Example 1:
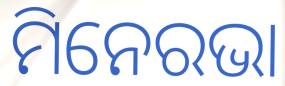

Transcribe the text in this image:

ମିନେରଭା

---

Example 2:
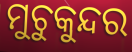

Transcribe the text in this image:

ମୁଚୁକୁନ୍ଦର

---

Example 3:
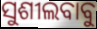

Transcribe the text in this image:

ସୁଶୀଲବାବୁ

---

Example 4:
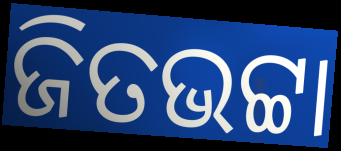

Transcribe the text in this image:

ଜିତଭଟ୍ଟା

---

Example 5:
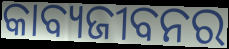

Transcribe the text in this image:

କାବ୍ୟଜୀବନର